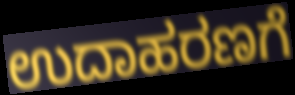
ಉದಾಹರಣಗೆ